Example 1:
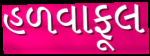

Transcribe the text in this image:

હળવાફૂલ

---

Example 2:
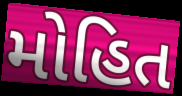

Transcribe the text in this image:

મોહિત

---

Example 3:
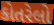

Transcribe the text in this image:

કોતરેલો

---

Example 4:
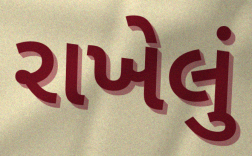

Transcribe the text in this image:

રાખેલું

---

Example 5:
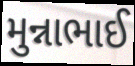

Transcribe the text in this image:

મુન્નાભાઈ